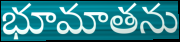
భూమాతను